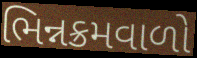
ભિન્નક્રમવાળો